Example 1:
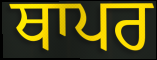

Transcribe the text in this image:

ਥਾਪਰ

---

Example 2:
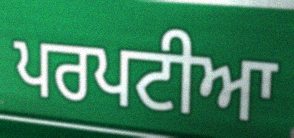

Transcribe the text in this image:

ਪਰਪਟੀਆ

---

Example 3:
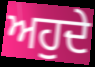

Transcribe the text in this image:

ਅਹੁਦੇ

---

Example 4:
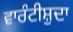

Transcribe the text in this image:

ਵਾਰੰਟੀਸ਼ੁਦਾ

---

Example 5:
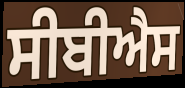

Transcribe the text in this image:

ਸੀਬੀਐਸ